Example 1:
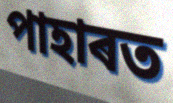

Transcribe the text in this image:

পাহাৰত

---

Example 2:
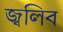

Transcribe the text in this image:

জ্বলিব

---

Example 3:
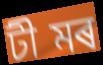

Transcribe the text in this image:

টীমৰ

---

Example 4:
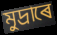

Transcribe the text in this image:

মুদ্ৰাৰে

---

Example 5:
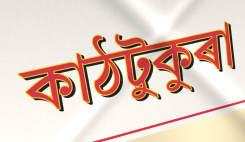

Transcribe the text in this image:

কাঠটুকুৰা